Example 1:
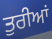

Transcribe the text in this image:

ਤੁਰੀਆਂ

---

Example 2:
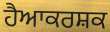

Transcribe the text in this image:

ਹੈਆਕਰਸ਼ਕ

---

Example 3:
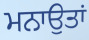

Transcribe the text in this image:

ਮਨਾਉਤਾਂ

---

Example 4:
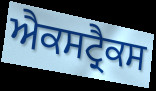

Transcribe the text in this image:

ਐਕਸਟ੍ਰੈਕਸ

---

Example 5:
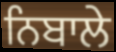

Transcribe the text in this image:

ਨਿਬਾਲੇ